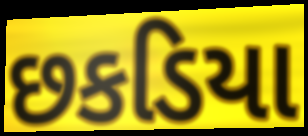
છકડિયા